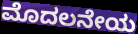
ಮೊದಲನೇಯ